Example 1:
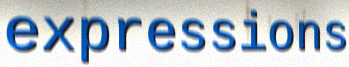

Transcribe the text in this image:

expressions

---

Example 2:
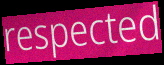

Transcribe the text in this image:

respected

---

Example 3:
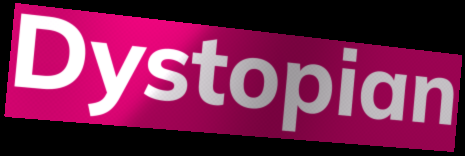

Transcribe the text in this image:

Dystopian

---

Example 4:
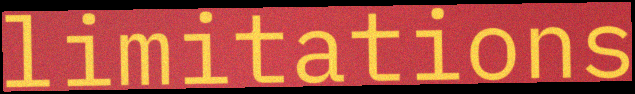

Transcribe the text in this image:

limitations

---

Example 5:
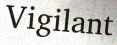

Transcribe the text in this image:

Vigilant